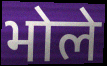
भोले